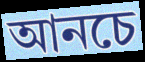
আনচে